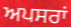
ਅਪਸਰਾਂ